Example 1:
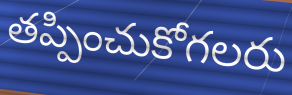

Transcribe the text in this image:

తప్పించుకోగలరు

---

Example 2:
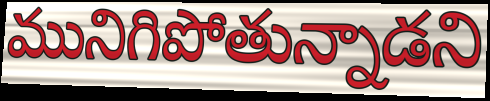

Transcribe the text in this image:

మునిగిపోతున్నాడని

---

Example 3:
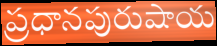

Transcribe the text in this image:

ప్రధానపురుషాయ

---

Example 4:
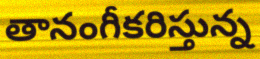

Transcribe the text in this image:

తానంగీకరిస్తున్న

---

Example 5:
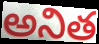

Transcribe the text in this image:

అనిత